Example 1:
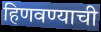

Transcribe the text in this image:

हिणवण्याची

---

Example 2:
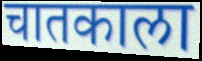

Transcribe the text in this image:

चातकाला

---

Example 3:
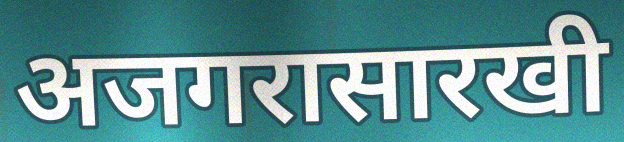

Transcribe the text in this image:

अजगरासारखी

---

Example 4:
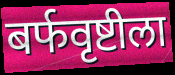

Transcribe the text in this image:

बर्फवृष्टीला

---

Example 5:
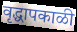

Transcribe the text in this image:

वृद्धापकाळी